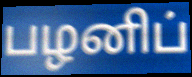
பழனிப்